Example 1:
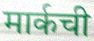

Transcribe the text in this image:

मार्कची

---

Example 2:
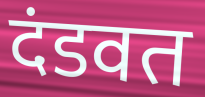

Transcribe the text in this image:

दंडवत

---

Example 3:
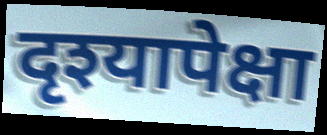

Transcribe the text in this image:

दृश्यापेक्षा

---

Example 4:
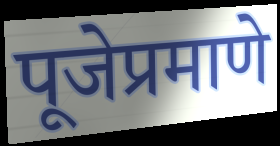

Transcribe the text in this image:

पूजेप्रमाणे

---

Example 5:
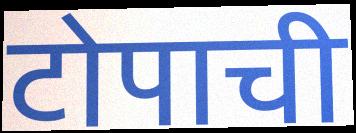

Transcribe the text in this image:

टोपाची